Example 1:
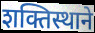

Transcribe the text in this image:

शक्तिस्थाने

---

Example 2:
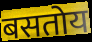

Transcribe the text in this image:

बसतोय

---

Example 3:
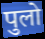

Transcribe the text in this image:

पुलो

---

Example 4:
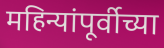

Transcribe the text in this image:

महिन्यांपूर्वीच्या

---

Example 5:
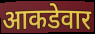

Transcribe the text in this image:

आकडेवार